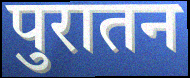
पुरातन